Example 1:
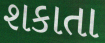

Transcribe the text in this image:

શકાતા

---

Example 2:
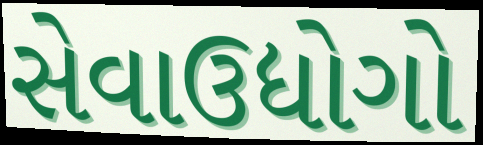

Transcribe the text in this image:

સેવાઉદ્યોગો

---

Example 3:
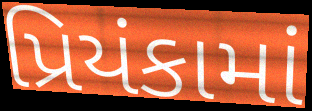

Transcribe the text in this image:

પ્રિયંકામાં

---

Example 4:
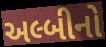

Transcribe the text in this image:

અલ્બીનો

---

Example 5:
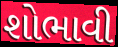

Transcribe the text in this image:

શોભાવી